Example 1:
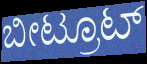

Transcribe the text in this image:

ಬೀಟ್ರೂಟ್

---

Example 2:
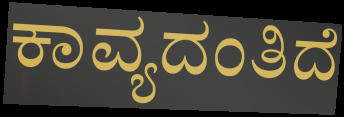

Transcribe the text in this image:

ಕಾವ್ಯದಂತಿದೆ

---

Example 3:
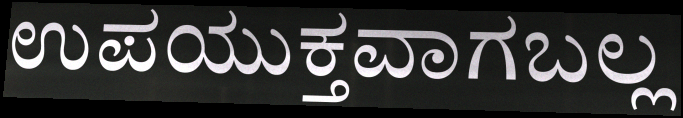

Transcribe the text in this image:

ಉಪಯುಕ್ತವಾಗಬಲ್ಲ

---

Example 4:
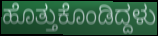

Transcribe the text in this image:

ಹೊತ್ತುಕೊಂಡಿದ್ದಳು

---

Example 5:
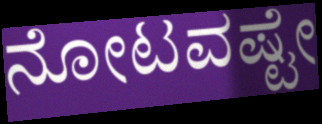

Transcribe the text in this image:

ನೋಟವಷ್ಟೇ